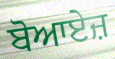
ਬੋਆਏਜ਼